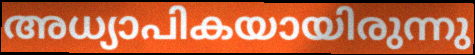
അധ്യാപികയായിരുന്നു